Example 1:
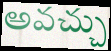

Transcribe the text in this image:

అవచ్చు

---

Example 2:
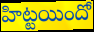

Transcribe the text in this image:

హిట్టయిందో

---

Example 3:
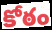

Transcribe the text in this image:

కోఠం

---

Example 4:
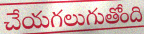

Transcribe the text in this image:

చేయగలుగుతోంది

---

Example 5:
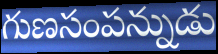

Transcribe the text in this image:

గుణసంపన్నుడు